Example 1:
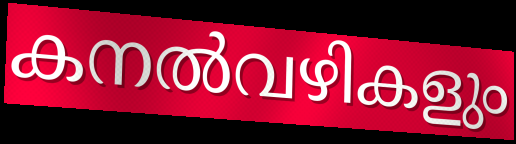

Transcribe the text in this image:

കനൽവഴികളും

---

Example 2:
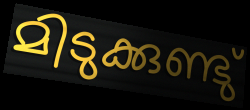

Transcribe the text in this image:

മിടുക്കുണ്ടു്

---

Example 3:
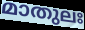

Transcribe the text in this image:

മാതുലഃ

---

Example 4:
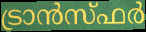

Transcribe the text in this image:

ട്രാൻസ്ഫർ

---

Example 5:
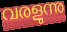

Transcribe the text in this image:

വരളുന്നു